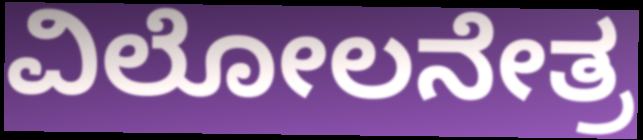
ವಿಲೋಲನೇತ್ರ